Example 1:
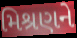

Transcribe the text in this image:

મિશ્રણને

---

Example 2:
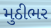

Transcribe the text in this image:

મુઠીભર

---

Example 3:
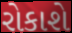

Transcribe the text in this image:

રોકાશે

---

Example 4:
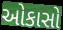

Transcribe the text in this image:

ઓકાસો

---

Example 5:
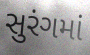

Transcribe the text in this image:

સુરંગમાં